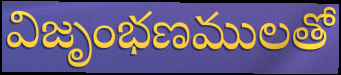
విజృంభణములతో